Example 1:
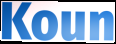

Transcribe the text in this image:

Koun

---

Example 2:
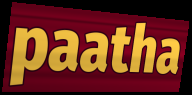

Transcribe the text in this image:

paatha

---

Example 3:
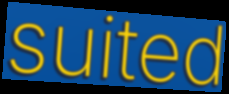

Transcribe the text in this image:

suited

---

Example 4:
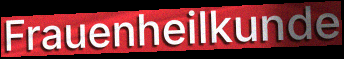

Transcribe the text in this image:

Frauenheilkunde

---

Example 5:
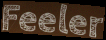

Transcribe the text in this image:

Feeler